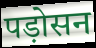
पड़ोसन